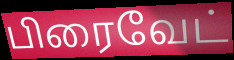
பிரைவேட்